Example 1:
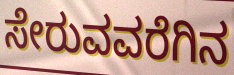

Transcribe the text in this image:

ಸೇರುವವರೆಗಿನ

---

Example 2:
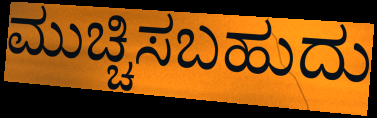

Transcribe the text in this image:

ಮುಚ್ಚಿಸಬಹುದು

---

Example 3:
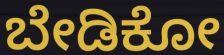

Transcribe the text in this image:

ಬೇಡಿಕೋ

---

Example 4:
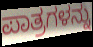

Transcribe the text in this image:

ಪಾತ್ರಗಳನ್ನು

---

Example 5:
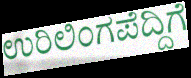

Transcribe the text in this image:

ಉರಿಲಿಂಗಪೆದ್ದಿಗೆ